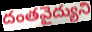
దంతవైద్యుని